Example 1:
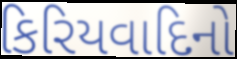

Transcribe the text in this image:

કિરિયવાદિનો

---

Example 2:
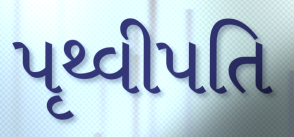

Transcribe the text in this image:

પૃથ્વીપતિ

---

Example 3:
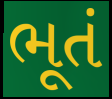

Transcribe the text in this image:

ભૂતં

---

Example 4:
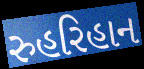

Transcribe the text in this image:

રુહરિહાન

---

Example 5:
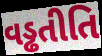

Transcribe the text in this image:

વડ્ઢતીતિ